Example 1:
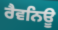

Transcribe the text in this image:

ਰੈਵਨਿਊ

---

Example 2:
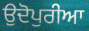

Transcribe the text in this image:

ਉਦੋਪੁਰੀਆ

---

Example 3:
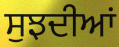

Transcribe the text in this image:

ਸੁਝਦੀਆਂ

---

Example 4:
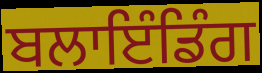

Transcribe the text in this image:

ਬਲਾਇੰਡਿੰਗ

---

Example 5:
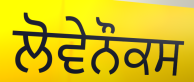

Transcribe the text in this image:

ਲੋਵੇਨੌਕਸ